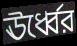
ঊর্ধ্বের